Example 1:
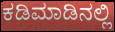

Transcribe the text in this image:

ಕಡಿಮಾಡಿನಲ್ಲಿ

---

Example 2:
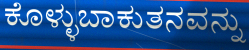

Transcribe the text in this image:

ಕೊಳ್ಳುಬಾಕುತನವನ್ನು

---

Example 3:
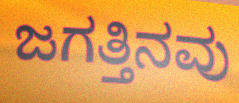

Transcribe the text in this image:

ಜಗತ್ತಿನವು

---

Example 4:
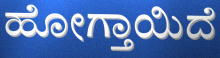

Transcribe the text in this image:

ಹೋಗ್ತಾಯಿದೆ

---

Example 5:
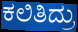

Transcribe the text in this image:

ಕಲಿತಿದ್ರು